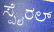
ಸ್ಪೈರಲ್